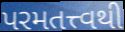
પરમતત્ત્વથી